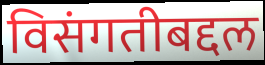
विसंगतीबद्दल